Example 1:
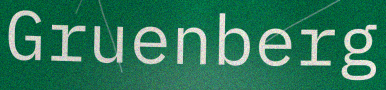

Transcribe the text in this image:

Gruenberg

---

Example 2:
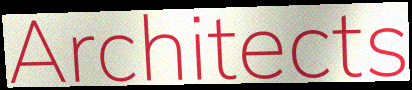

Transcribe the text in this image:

Architects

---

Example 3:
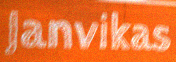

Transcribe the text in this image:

Janvikas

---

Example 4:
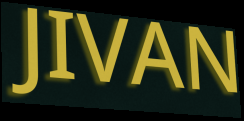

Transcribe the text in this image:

JIVAN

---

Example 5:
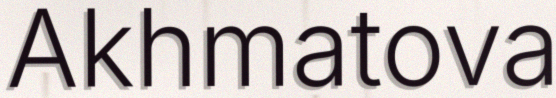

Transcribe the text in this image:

Akhmatova